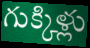
గుక్కిళ్లు